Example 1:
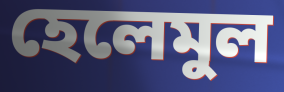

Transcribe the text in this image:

হেলেমুল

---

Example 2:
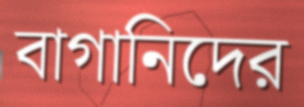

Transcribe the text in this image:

বাগানিদের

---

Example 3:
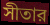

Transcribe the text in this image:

সীতার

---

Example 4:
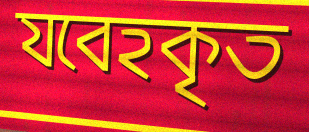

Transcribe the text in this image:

যবেহকৃত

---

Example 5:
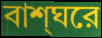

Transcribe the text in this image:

বাশ্ঘরে